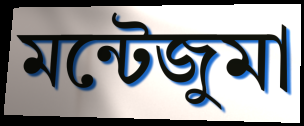
মন্টেজুমা